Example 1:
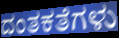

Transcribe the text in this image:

ದಂತಕತೆಗಳು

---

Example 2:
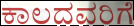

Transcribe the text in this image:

ಕಾಲದವರಿಗೆ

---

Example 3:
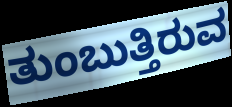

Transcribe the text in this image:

ತುಂಬುತ್ತಿರುವ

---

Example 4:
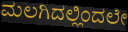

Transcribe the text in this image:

ಮಲಗಿದಲ್ಲಿಂದಲೇ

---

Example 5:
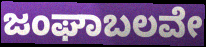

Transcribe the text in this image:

ಜಂಘಾಬಲವೇ